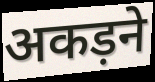
अकड़ने